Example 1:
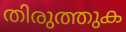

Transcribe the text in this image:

തിരുത്തുക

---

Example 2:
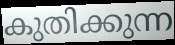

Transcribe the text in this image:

കുതിക്കുന്ന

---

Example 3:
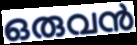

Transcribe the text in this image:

ഒരുവൻ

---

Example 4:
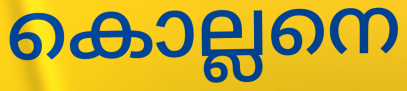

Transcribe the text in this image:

കൊല്ലനെ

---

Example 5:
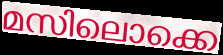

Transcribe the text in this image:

മസിലൊക്കെ